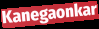
Kanegaonkar